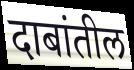
दाबांतील